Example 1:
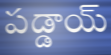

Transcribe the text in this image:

పడ్డాయ్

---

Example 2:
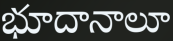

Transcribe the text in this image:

భూదానాలూ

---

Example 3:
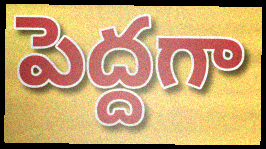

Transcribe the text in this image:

పెద్దగా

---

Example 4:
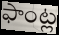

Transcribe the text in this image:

ఫాంట్ల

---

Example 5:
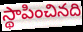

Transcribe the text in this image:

స్థాపించినది